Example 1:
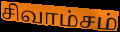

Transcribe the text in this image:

சிவாம்சம்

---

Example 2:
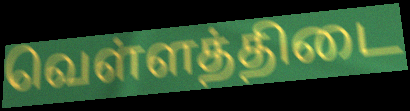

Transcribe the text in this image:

வெள்ளத்திடை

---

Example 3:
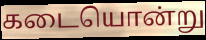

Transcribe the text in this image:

கடையொன்று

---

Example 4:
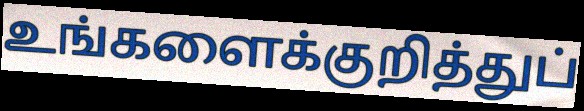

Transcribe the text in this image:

உங்களைக்குறித்துப்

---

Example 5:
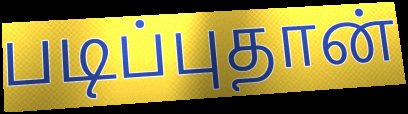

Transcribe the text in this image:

படிப்புதான்